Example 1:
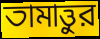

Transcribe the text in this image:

তামাত্তুর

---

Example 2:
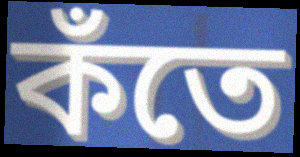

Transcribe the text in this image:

কঁতে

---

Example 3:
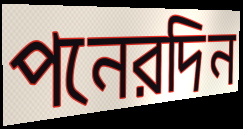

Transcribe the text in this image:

পনেরদিন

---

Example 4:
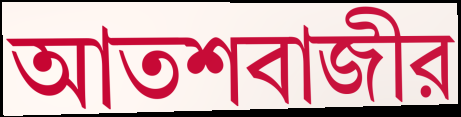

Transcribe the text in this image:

আতশবাজীর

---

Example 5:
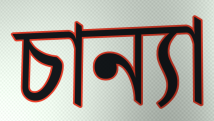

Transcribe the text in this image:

চান্যা